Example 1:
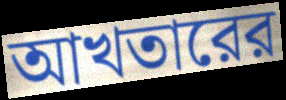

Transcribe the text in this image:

আখতারের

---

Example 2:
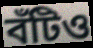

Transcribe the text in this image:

বঁটিও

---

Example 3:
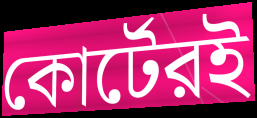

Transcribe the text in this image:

কোর্টেরই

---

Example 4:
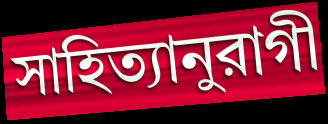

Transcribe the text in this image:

সাহিত্যানুরাগী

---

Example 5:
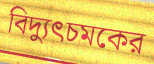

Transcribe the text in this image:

বিদ্যুৎচমকের